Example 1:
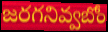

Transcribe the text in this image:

జరగనివ్వబోం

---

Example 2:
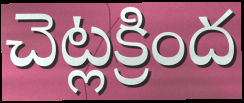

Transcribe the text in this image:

చెట్లక్రింద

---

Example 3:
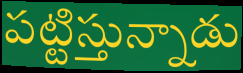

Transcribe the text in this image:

పట్టిస్తున్నాడు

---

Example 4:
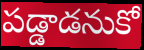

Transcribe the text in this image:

పడ్డాడనుకో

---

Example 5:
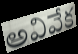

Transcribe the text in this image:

అవివేక